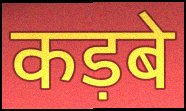
कड़बे